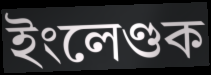
ইংলেণ্ডক